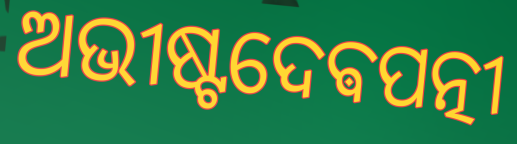
ଅଭୀଷ୍ଟଦେଵପତ୍ନୀ